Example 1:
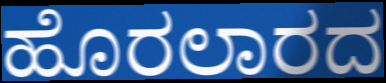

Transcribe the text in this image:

ಹೊರಲಾರದ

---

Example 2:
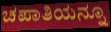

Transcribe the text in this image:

ಚಪಾತಿಯನ್ನೂ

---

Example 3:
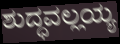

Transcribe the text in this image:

ಶುದ್ಧವಲ್ಲಯ್ಯ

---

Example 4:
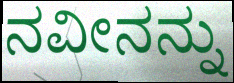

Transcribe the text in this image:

ನವೀನನ್ನು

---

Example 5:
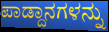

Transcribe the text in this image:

ಪಾಡ್ದಾನಗಳನ್ನು